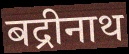
बद्रीनाथ